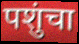
पशुंचा